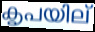
കൃപയില്